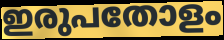
ഇരുപതോളം